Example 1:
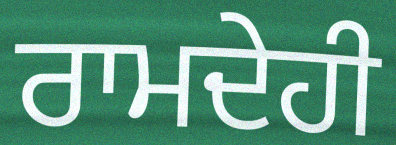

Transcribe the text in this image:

ਰਾਮਦੇਹੀ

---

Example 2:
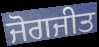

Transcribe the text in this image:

ਜੋਗਜੀਤ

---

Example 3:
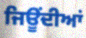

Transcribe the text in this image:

ਜਿਊਂਦੀਆਂ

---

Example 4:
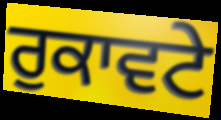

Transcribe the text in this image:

ਰੁਕਾਵਟੇ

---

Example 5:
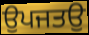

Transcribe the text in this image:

ਉਪਜਤਉ